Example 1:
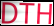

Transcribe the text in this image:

DTH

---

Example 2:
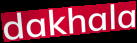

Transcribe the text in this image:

dakhala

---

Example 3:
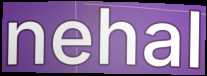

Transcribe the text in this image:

nehal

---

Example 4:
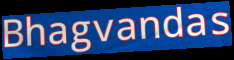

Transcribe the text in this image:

Bhagvandas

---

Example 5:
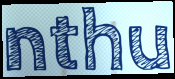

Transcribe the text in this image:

nthu